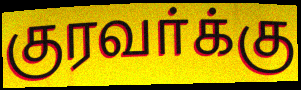
குரவர்க்கு